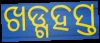
ଖଡ୍ଗହସ୍ତ